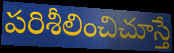
పరిశీలించిచూస్తే